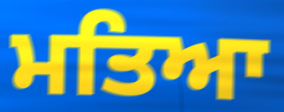
ਮਤਿਆ